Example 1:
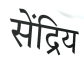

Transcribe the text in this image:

सेंद्रिय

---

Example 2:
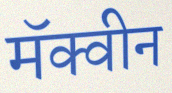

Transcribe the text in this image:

मॅक्वीन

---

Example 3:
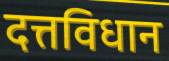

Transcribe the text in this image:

दत्तविधान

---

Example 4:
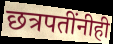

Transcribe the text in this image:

छत्रपतींनीही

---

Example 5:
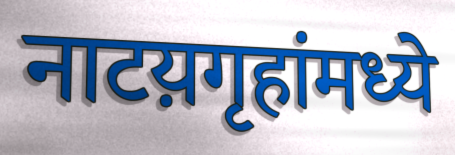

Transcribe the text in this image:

नाटय़गृहांमध्ये